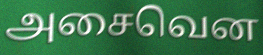
அசைவென